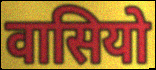
वासियो